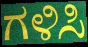
ಗಳಿಸಿ